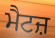
ਮੈਟਜ਼